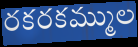
రకరకమ్ముల